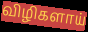
விழிகளாய்